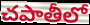
చపాతీలో